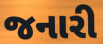
જનારી